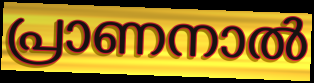
പ്രാണനാൽ